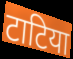
टाटिया